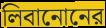
লিবানোনের